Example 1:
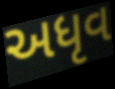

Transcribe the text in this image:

અધૃવ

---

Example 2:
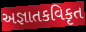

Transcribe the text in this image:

અજ્ઞાતકવિકૃત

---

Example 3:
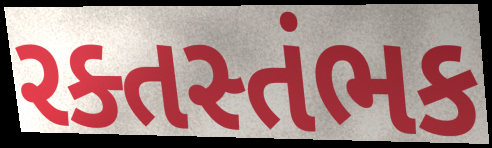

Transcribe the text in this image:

રક્તસ્તંભક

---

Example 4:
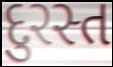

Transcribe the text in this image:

દુરસ્ત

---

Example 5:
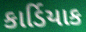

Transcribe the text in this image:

કાર્ડિયાક